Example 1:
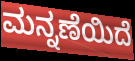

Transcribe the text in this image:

ಮನ್ನಣೆಯಿದೆ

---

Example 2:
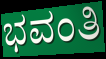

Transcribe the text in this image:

ಭವಂತಿ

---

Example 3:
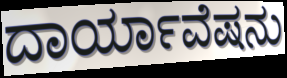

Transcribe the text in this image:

ದಾರ್ಯಾವೆಷನು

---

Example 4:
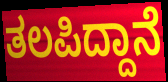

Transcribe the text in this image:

ತಲಪಿದ್ದಾನೆ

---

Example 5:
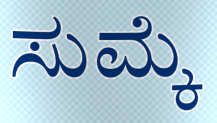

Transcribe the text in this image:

ಸುಮ್ಕೆ